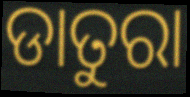
ଡାତୁରା